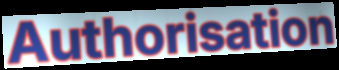
Authorisation